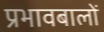
प्रभावबालों